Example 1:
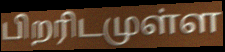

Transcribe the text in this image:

பிறரிடமுள்ள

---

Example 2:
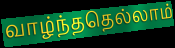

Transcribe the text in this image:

வாழ்ந்ததெல்லாம்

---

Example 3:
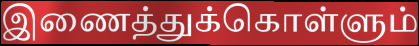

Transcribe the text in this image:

இணைத்துக்கொள்ளும்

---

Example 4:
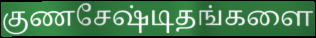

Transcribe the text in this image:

குணசேஷ்டிதங்களை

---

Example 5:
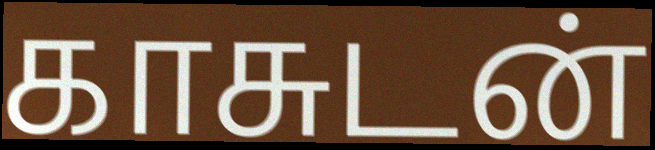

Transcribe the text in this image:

காசுடன்